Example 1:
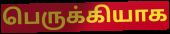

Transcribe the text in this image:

பெருக்கியாக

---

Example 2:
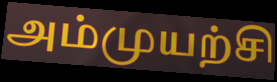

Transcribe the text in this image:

அம்முயற்சி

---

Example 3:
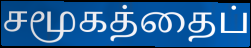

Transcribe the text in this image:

சமூகத்தைப்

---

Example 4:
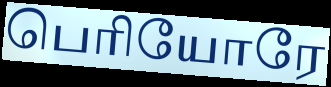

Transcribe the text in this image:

பெரியோரே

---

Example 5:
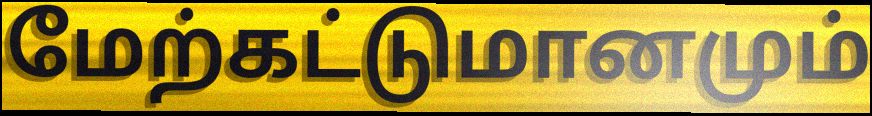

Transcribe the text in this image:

மேற்கட்டுமானமும்